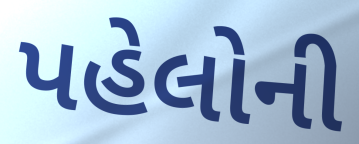
પહેલોની